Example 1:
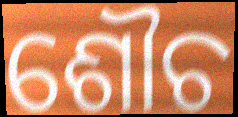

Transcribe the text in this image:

ଶୌଚ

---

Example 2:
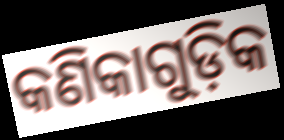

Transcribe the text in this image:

କଣିକାଗୁଡ଼ିକ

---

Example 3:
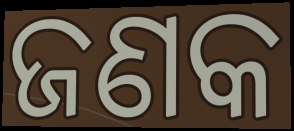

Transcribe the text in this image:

ଜଣକ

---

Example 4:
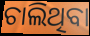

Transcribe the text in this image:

ଚାଲିଥିବା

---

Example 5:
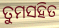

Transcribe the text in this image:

ତୁମସହିତ